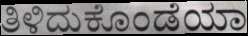
ತಿಳಿದುಕೊಂಡೆಯಾ